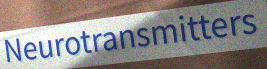
Neurotransmitters